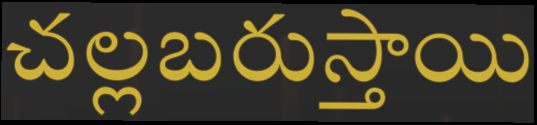
చల్లబరుస్తాయి